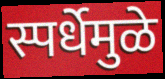
स्पर्धेमुळे